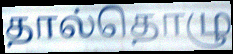
தால்தொழு